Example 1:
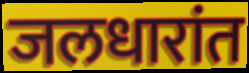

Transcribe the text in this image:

जलधारांत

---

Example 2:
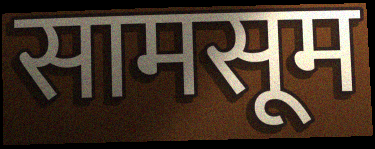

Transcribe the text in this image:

सामसूम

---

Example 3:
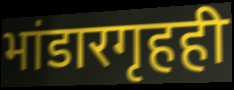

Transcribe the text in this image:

भांडारगृहही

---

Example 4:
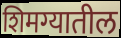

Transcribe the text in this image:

शिमग्यातील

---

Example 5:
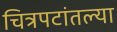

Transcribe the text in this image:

चित्रपटांतल्या